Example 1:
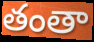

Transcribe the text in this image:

తంతా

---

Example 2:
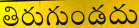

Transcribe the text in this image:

తిరుగుండదు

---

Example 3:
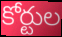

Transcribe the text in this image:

కోర్టుల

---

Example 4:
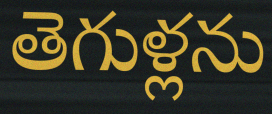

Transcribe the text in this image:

తెగుళ్లను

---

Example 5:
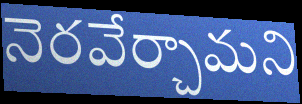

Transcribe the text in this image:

నెరవేర్చామని